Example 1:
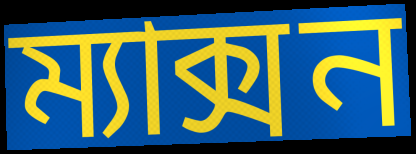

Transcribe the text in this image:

ম্যাক্সন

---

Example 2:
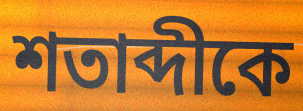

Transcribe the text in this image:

শতাব্দীকে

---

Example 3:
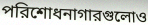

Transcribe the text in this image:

পরিশোধনাগারগুলোও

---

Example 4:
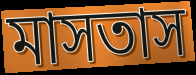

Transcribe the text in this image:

মাসতাস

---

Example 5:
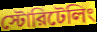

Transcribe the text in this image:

স্টোরিটেলিং